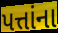
પત્તાંના